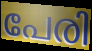
പേരി